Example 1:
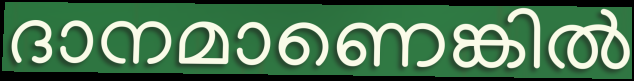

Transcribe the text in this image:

ദാനമാണെങ്കിൽ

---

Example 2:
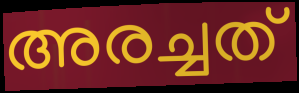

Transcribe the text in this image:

അരച്ചത്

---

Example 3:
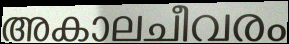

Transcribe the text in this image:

അകാലചീവരം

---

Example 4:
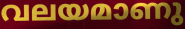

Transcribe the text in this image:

വലയമാണു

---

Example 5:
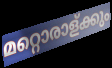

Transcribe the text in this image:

മറ്റൊരാള്ക്കും